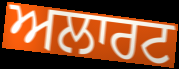
ਅਲਾਰਟ